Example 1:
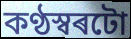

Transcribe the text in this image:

কণ্ঠস্বৰটো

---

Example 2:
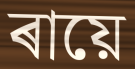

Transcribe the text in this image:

ৰায়ে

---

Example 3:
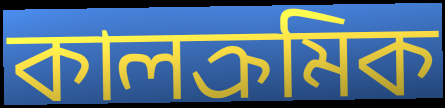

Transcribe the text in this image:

কালক্ৰমিক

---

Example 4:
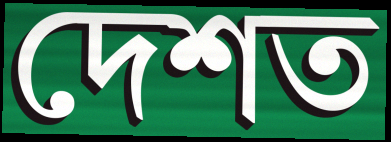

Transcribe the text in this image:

দেশত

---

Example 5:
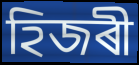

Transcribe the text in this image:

হিজৰী